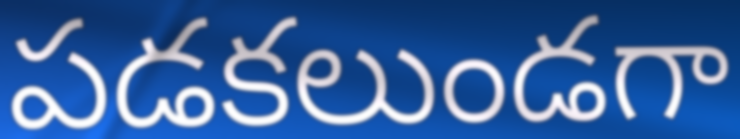
పడకలుండగా